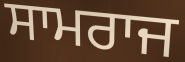
ਸਾਮਰਾਜ